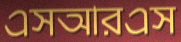
এসআরএস